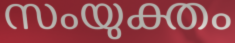
സംയുക്തം